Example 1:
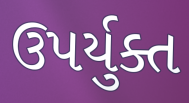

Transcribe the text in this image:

ઉપર્યુક્ત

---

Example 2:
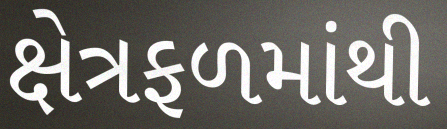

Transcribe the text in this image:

ક્ષેત્રફળમાંથી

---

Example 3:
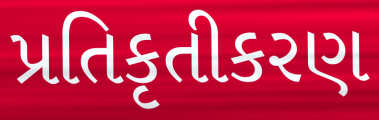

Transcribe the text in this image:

પ્રતિકૃતીકરણ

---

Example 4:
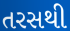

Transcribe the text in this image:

તરસથી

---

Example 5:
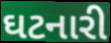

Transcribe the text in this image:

ઘટનારી